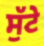
ਸੁੱਟੇ